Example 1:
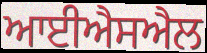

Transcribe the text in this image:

ਆਈਐਸਐਲ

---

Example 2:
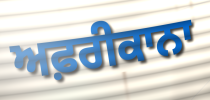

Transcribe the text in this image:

ਅਫ਼ਰੀਕਾਨਾ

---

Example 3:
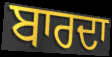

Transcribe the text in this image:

ਬਾਰਦਾ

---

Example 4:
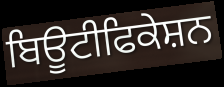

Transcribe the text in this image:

ਬਿਊਟੀਫਿਕੇਸ਼ਨ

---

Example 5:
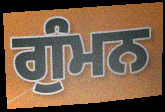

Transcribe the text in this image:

ਗੁੰਮਨ